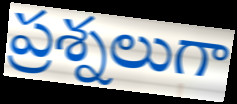
ప్రశ్నలుగా